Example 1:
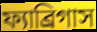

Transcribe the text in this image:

ফ্যাব্রিগাস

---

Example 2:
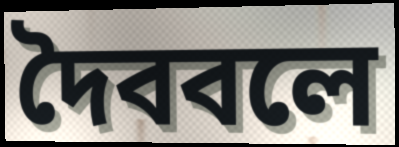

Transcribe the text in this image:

দৈববলে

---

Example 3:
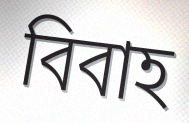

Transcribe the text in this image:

বিবাহ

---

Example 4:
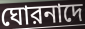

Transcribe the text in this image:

ঘোরনাদে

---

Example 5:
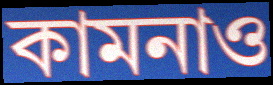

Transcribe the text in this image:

কামনাও